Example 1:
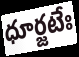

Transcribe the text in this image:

ధూర్జటేః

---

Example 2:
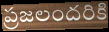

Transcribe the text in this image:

ప్రజలందరికి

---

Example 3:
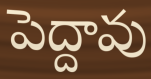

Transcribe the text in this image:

పెద్దావు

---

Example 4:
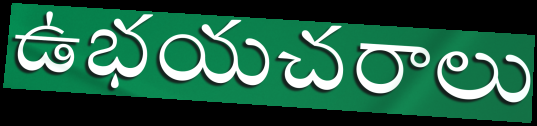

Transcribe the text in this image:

ఉభయచరాలు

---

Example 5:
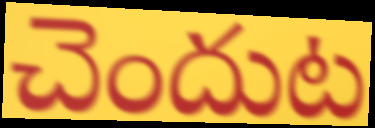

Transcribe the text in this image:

చెందుట